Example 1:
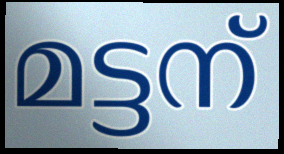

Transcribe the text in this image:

മട്ടന്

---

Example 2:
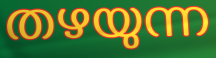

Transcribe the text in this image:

തഴയുന്ന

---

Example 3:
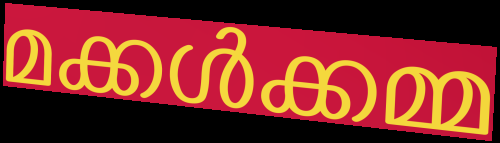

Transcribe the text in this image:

മക്കൾക്കമ്മ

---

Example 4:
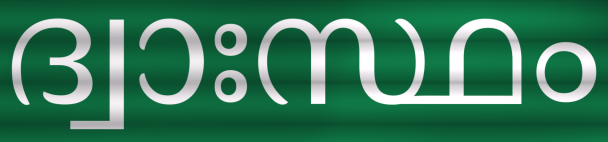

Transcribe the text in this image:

ദ്വാഃസ്ഥം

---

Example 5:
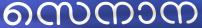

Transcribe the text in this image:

സെനാന